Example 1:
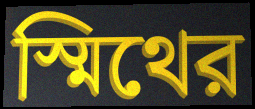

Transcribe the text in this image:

স্মিথের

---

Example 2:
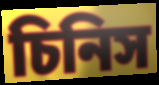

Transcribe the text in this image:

চিনিস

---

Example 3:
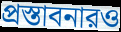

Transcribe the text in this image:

প্রস্তাবনারও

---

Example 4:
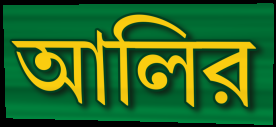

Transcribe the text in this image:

আলির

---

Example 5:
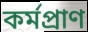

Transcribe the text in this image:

কর্মপ্রাণ